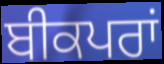
ਬੀਕਪਰਾਂ